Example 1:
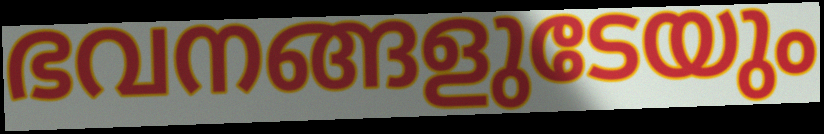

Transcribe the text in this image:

ഭവനങ്ങളുടേയും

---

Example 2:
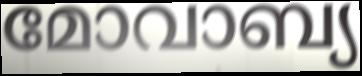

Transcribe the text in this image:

മോവാബ്യ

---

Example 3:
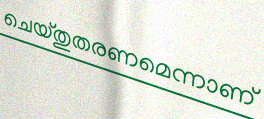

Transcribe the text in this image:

ചെയ്തുതരണമെന്നാണ്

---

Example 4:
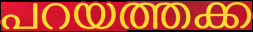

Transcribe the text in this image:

പറയത്തക്ക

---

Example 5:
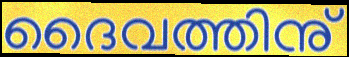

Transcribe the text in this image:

ദൈവത്തിനു്